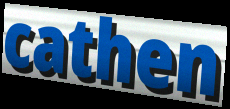
cathen